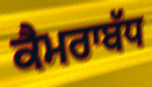
ਕੈਮਰਾਬੱਧ